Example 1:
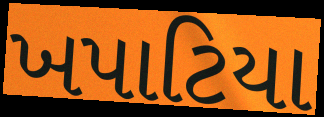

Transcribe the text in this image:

ખપાટિયા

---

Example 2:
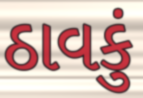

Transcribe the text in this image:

ઠાવકું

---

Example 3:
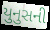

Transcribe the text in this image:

યુનુસની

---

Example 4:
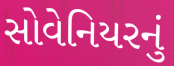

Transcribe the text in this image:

સોવેનિયરનું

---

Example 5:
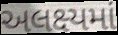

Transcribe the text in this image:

અલક્ષ્યમાં